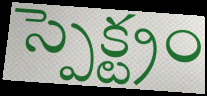
స్పెక్ట్రం